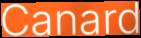
Canard